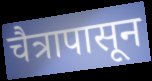
चैत्रापासून